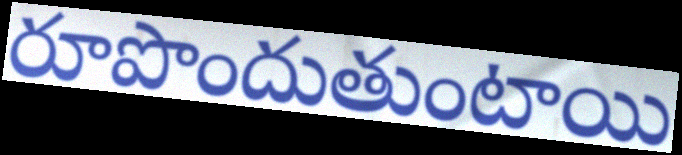
రూపొందుతుంటాయి